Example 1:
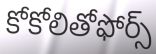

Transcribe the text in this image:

కోకోలితోఫోర్స్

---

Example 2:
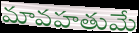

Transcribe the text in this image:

మావహతుమే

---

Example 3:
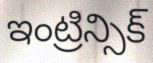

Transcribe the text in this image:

ఇంట్రిన్సిక్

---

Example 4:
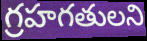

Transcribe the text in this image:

గ్రహగతులని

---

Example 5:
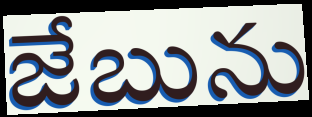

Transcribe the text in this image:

జేబును